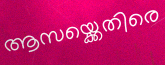
ആസയ്ക്കെതിരെ